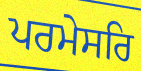
ਪਰਮੇਸਰਿ